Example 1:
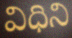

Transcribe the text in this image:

విధిని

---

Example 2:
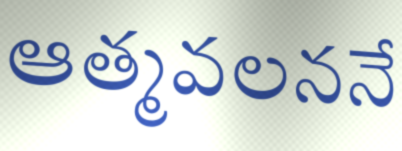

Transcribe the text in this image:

ఆత్మవలననే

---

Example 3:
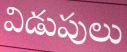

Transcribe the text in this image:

విడుపులు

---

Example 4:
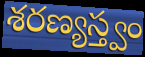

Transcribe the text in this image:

శరణ్యస్త్వం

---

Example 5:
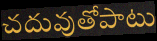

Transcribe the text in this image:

చదువుతోపాటు